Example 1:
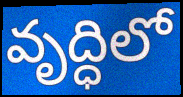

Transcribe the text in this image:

వృద్ధిలో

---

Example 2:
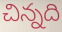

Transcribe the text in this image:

చిన్నది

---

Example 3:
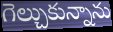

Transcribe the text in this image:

గెల్చుకున్నాను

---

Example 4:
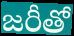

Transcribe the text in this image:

జరీతో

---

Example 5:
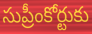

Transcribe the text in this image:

సుప్రీంకోర్టుకు